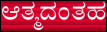
ಆತ್ಮದಂತಹ